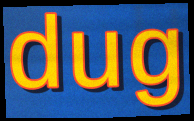
dug